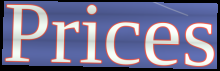
Prices